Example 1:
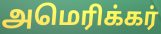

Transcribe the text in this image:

அமெரிக்கர்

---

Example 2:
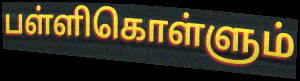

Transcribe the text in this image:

பள்ளிகொள்ளும்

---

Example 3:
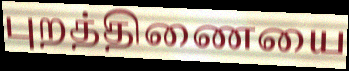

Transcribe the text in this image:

புறத்திணையை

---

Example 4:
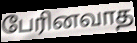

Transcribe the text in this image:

பேரினவாத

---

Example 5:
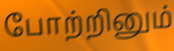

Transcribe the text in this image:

போற்றினும்